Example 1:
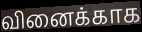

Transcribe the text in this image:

வினைக்காக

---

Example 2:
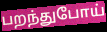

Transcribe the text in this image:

பறந்துபோய்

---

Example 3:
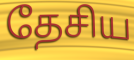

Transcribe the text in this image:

தேசிய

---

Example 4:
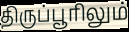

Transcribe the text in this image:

திருப்பூரிலும்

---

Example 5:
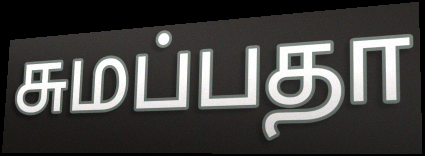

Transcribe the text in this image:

சுமப்பதா